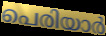
പെരിയാർ